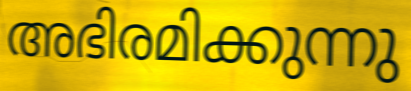
അഭിരമിക്കുന്നു